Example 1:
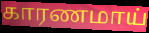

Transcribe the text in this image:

காரணமாய்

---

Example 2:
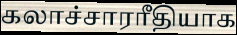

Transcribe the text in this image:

கலாச்சாரரீதியாக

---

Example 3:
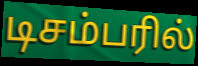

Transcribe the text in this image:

டிசம்பரில்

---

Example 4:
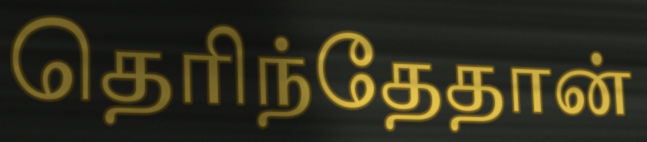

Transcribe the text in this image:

தெரிந்தேதான்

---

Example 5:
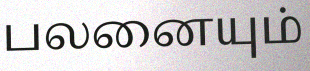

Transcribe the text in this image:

பலனையும்